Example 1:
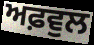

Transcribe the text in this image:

ਅਫ਼ਵੁਲ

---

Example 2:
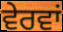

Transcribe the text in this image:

ਵੇਰਵਾਂ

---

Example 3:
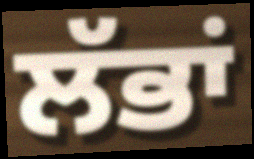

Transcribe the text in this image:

ਲੱਭਾਂ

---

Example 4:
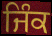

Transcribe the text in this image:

ਜਿੰਕ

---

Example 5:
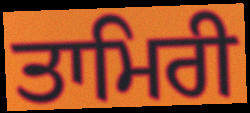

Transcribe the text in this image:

ਤਾਮਿਰੀ